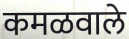
कमळवाले